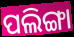
ପଲିଙ୍ଗା